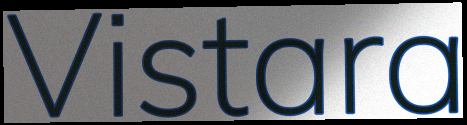
Vistara